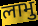
लाभु